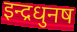
इन्द्रधुनष